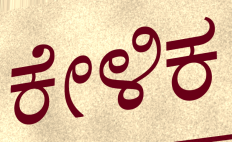
ಕೇಳಿಕ